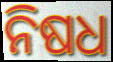
ନିଷଧ